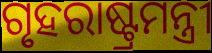
ଗୃହରାଷ୍ଟ୍ରମନ୍ତ୍ରୀ